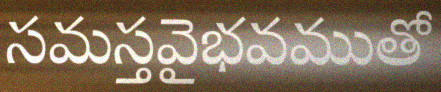
సమస్తవైభవముతో